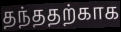
தந்ததற்காக